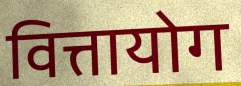
वित्तायोग